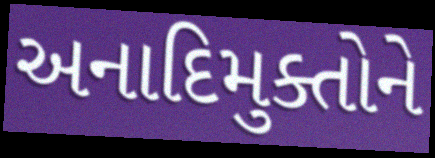
અનાદિમુક્તોને